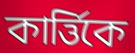
কার্ত্তিকে